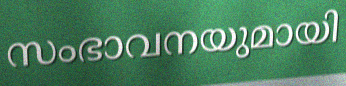
സംഭാവനയുമായി